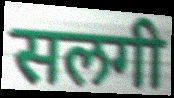
सलगी